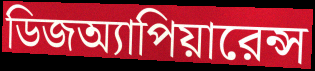
ডিজঅ্যাপিয়ারেন্স